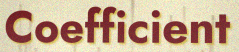
Coefficient